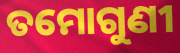
ତମୋଗୁଣୀ